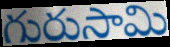
గురుసామి